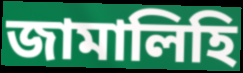
জামালিহি